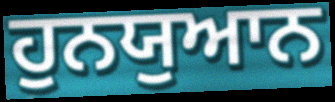
ਹੁਨਯੁਆਨ